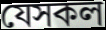
যেসকল